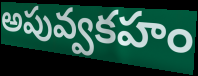
అపువ్వకహం